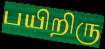
பயிறிரு